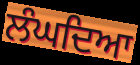
ਲੰਘਦਿਆ